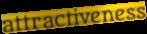
attractiveness